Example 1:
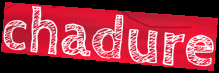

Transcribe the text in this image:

chadure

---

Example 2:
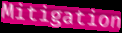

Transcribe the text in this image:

Mitigation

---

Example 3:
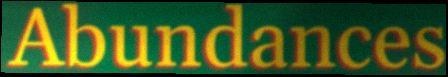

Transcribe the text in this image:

Abundances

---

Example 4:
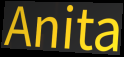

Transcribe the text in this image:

Anita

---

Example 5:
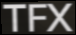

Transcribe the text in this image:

TFX